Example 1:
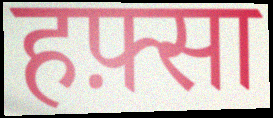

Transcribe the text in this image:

हफ़्सा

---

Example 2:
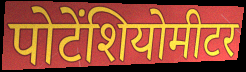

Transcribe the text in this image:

पोटेंशियोमीटर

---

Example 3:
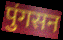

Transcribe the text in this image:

पुंगसन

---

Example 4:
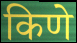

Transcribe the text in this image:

किणे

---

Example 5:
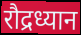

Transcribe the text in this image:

रौद्रध्यान